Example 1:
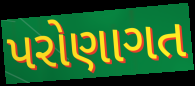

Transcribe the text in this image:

પરોણાગત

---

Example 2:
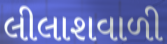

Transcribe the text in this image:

લીલાશવાળી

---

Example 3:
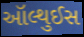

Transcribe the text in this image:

ઑલ્થુઈસ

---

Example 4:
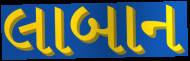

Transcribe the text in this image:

લાબાન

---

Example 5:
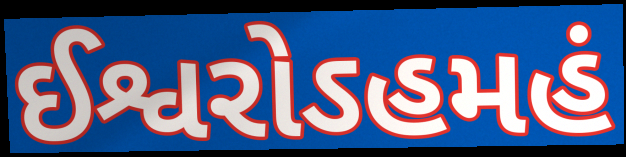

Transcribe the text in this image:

ઈશ્વરોઽહમહં